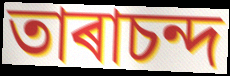
তাৰাচন্দ